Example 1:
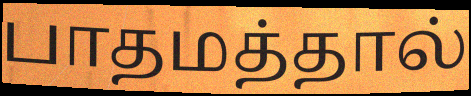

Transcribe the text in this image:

பாதமத்தால்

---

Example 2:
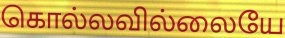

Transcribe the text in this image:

கொல்லவில்லையே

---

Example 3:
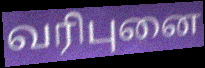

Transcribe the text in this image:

வரிபுனை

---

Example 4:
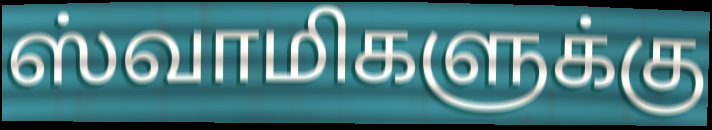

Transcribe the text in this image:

ஸ்வாமிகளுக்கு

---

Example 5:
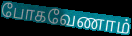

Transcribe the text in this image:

போகவேணாம்